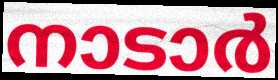
നാടാർ